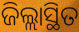
ଜିଲ୍ଲାସ୍ଥିତ